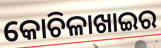
କୋଚିଳାଖାଇର